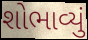
શોભાવ્યું